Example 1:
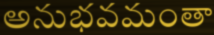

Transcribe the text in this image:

అనుభవమంతా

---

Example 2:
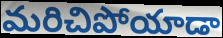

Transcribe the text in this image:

మరిచిపోయాడా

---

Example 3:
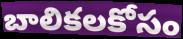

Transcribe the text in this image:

బాలికలకోసం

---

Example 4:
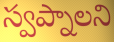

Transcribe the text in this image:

స్వప్నాలని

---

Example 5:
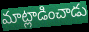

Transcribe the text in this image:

మాట్లాడించాడు